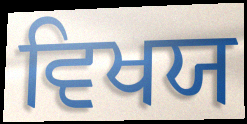
ਵਿਖਯ